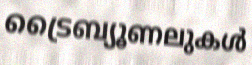
ട്രൈബ്യൂണലുകൾ